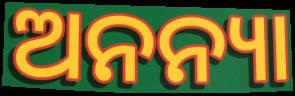
ଅନନ୍ୟା